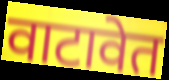
वाटावेत